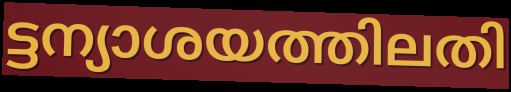
ട്ടന്യാശയത്തിലതി